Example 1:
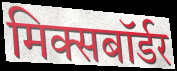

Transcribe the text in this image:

मिक्सबॉर्डर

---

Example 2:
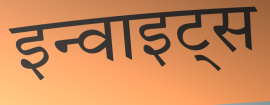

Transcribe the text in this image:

इन्वाइट्स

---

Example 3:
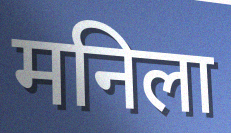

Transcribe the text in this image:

मनिला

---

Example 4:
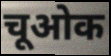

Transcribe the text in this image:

चूओक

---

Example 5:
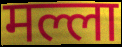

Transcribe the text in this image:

मल्‍ला